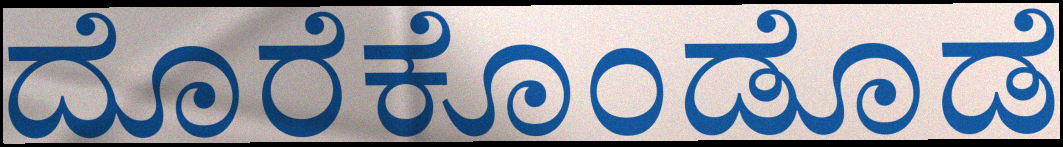
ದೊರೆಕೊಂಡೊಡೆ